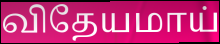
விதேயமாய்